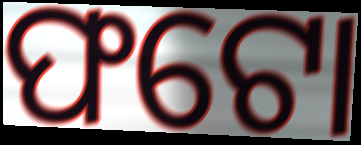
ଫଟୋ